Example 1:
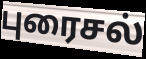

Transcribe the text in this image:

புரைசல்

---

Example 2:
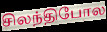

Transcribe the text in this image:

சிலந்திபோல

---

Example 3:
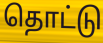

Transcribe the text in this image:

தொட்டு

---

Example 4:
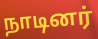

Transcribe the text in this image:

நாடினர்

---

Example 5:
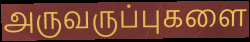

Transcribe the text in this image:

அருவருப்புகளை